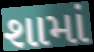
શામાં